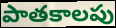
పాతకాలపు